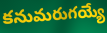
కనుమరుగయ్యే